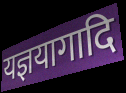
यज्ञयागादि